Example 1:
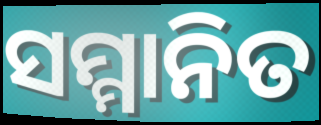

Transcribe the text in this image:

ସମ୍ମାନିତ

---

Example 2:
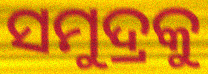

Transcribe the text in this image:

ସମୁଦ୍ରକୁ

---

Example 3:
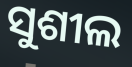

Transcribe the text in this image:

ସୁଶୀଲ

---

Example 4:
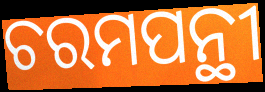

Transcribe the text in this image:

ଚରମପନ୍ଥୀ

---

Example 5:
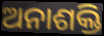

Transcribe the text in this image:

ଅନାଶକ୍ତି